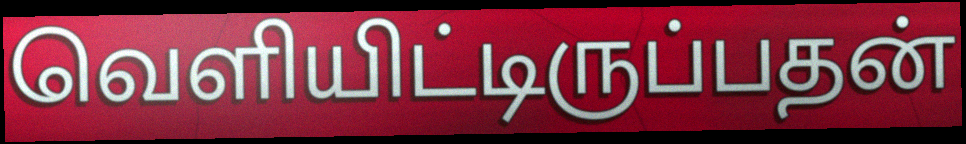
வெளியிட்டிருப்பதன்